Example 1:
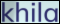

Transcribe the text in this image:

khila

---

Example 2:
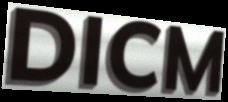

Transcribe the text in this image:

DICM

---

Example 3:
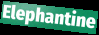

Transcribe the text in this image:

Elephantine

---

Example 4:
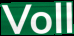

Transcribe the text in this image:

Voll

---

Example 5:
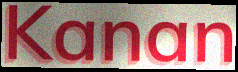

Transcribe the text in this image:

Kanan